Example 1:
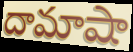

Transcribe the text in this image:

దామాషా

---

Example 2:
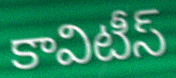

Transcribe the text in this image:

కావిటీస్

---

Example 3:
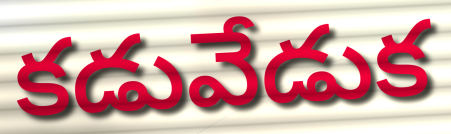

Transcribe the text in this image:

కడువేడుక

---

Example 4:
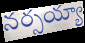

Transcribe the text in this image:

నర్సయ్యా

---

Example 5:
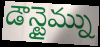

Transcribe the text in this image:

డౌన్టైమ్ను